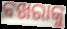
ବଖରାକୁ